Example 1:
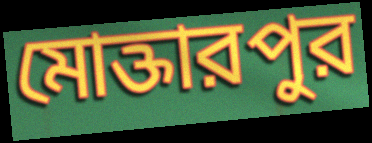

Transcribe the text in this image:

মোক্তারপুর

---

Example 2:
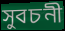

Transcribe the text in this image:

সুবচনী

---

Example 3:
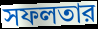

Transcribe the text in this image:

সফলতার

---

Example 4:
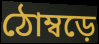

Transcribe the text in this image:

ঠোম্বড়ে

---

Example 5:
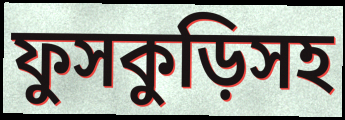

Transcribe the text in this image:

ফুসকুড়িসহ